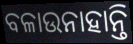
ବଳାଉନାହାନ୍ତି